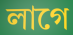
লাগে